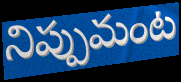
నిప్పుమంట